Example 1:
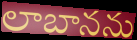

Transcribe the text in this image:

లాబానను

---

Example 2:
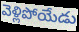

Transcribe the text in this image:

వెళ్లిపోయేడు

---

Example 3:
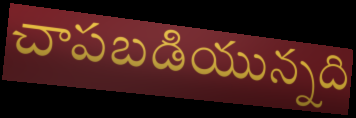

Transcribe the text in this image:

చాపబడియున్నది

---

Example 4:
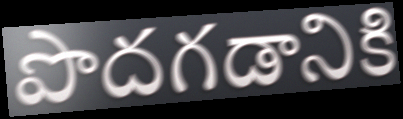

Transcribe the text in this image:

పొదగడానికి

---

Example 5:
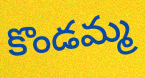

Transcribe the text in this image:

కొండమ్మ